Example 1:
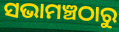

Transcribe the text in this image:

ସଭାମଞ୍ଚଠାରୁ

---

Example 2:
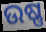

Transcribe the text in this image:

ଉଷ୍ଣ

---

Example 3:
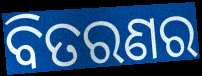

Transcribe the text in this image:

ବିତରଣର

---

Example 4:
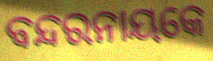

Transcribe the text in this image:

ବନ୍ଦରନାୟକେ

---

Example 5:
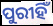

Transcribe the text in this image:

ପୁରୀହିଁ